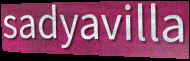
sadyavilla